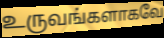
உருவங்களாகவே